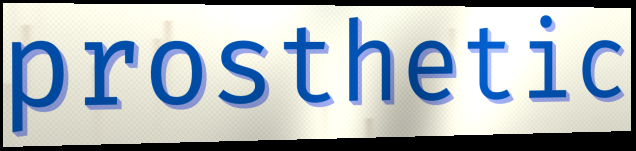
prosthetic